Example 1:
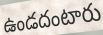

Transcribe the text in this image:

ఉండదంటారు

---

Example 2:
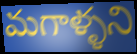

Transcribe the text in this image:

మగాళ్ళని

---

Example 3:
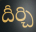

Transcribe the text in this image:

దీర్చి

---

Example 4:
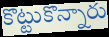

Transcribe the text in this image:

కొట్టుకొన్నారు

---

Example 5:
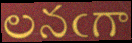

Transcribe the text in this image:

లనఁగా